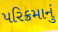
પરિક્રમાનું